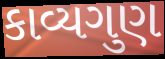
કાવ્યગુણ